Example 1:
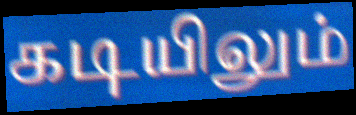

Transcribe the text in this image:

கடியிலும்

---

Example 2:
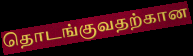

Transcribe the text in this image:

தொடங்குவதற்கான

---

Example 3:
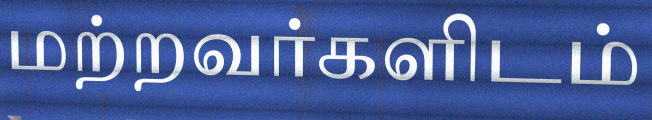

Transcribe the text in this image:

மற்றவர்களிடம்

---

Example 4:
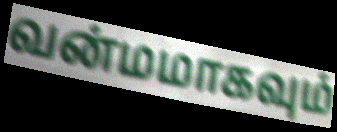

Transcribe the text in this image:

வன்மமாகவும்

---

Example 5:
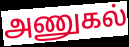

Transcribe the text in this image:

அணுகல்